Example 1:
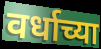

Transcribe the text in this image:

वर्धाच्या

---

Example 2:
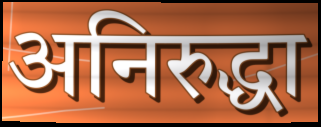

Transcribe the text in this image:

अनिरुद्धा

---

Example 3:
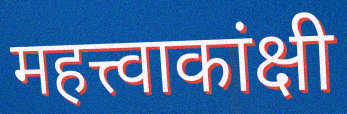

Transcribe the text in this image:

महत्त्वाकांक्षी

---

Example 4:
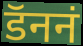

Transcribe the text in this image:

डॅननं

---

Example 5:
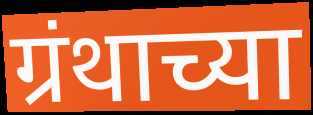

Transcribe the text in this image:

ग्रंथाच्या